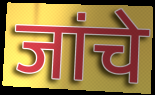
जांचे